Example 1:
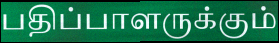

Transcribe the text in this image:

பதிப்பாளருக்கும்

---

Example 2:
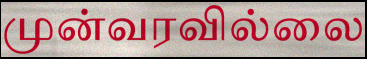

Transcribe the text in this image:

முன்வரவில்லை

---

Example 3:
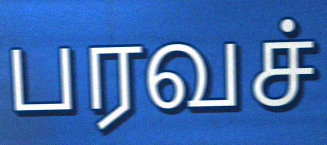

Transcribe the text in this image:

பரவச்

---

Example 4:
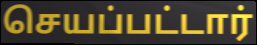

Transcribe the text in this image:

செயப்பட்டார்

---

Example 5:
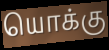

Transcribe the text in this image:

யொக்கு